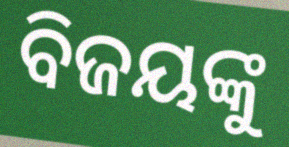
ବିଜୟଙ୍କୁ